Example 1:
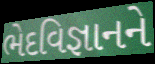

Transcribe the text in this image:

ભેદવિજ્ઞાનને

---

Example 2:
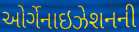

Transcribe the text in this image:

ઓર્ગેનાઇઝેશનની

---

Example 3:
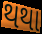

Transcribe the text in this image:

થથા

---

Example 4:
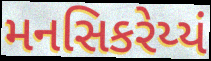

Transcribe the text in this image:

મનસિકરેય્યં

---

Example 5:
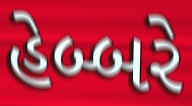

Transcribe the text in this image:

હેબ્બરે